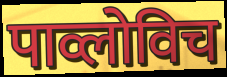
पाव्लोविच